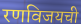
रणविजयची